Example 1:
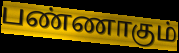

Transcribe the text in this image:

பண்ணாகும்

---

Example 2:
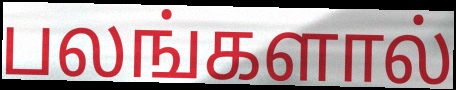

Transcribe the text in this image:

பலங்களால்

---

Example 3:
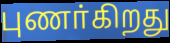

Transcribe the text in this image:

புணர்கிறது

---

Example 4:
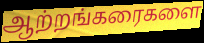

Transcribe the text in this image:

ஆற்றங்கரைகளை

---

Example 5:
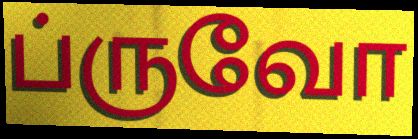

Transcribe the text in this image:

ப்ருவோ